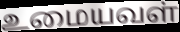
உமையவள்